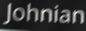
Johnian